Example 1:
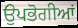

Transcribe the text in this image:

ਉਪਭੋਗੀਆਂ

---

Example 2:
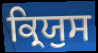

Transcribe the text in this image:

ਕ੍ਰਿਯੁਸ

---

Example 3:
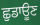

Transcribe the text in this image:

ਛੁਡਾਊਣ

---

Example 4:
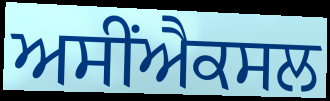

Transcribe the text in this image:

ਅਸੀਂਐਕਸਲ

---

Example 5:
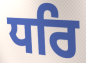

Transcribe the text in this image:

ਧਰਿ